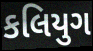
કલિયુગ